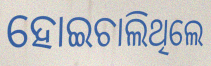
ହୋଇଚାଲିଥିଲେ